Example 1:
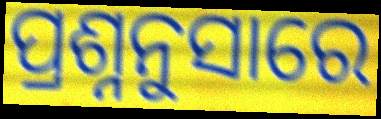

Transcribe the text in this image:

ପ୍ରଶ୍ନନୁସାରେ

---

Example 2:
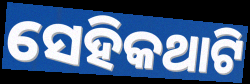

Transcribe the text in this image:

ସେହିକଥାଟି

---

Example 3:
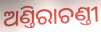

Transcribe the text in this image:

ଅଣ୍ତିରାଚଣ୍ତୀ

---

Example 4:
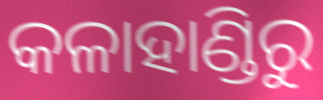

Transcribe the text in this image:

କଳାହାଣ୍ଡିରୁ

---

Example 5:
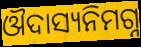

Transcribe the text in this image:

ଔଦାସ୍ୟନିମଗ୍ନ